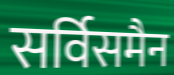
सर्विसमैन